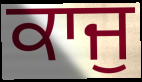
ਕਾਜੁ